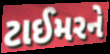
ટાઈમરને